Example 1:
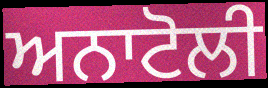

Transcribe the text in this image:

ਅਨਾਟੋਲੀ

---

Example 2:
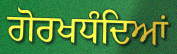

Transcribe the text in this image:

ਗੋਰਖਧੰਦਿਆਂ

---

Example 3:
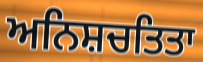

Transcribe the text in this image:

ਅਨਿਸ਼ਚਤਿਤਾ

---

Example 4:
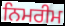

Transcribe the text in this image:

ਨਿਮਰੀਮ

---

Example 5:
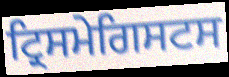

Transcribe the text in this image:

ਟ੍ਰਿਸਮੇਗਿਸਟਸ